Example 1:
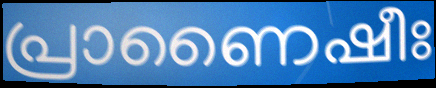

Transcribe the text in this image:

പ്രാണൈഷീഃ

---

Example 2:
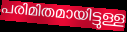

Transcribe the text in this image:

പരിമിതമായിട്ടുള്ള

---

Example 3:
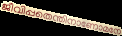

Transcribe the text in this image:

ജീവിപ്പതെന്തിനാണോമനേ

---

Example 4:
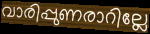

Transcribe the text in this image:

വാരിപ്പുണരാറില്ലേ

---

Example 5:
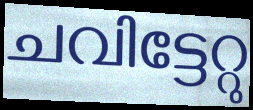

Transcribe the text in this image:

ചവിട്ടേറ്റു